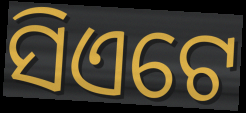
ସିଏଟେ